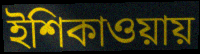
ইশিকাওয়ায়